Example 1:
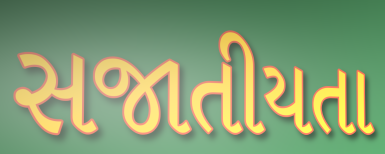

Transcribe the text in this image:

સજાતીયતા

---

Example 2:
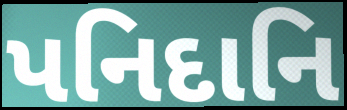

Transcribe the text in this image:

પનિદાનિ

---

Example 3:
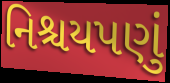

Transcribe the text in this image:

નિશ્ચયપણું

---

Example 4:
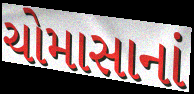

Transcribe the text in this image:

ચોમાસાનાં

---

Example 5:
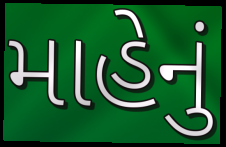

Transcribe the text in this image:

માહેનું